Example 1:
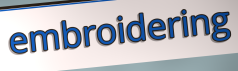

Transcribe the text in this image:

embroidering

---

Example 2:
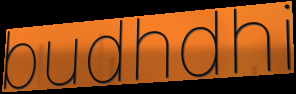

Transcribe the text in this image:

budhdhi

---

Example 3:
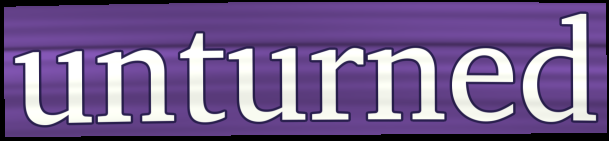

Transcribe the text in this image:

unturned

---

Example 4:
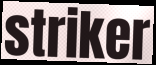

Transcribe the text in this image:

striker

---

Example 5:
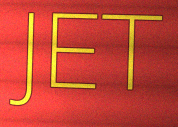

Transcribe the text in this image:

JET